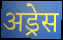
अड्रेस